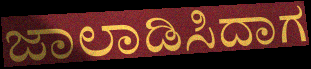
ಜಾಲಾಡಿಸಿದಾಗ